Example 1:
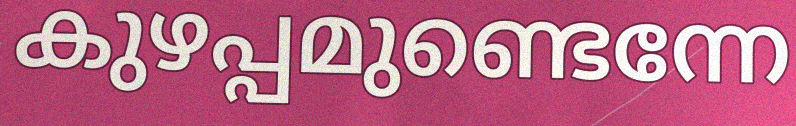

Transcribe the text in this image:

കുഴപ്പമുണ്ടെന്നേ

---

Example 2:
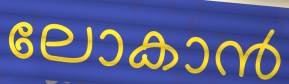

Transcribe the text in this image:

ലോകാൻ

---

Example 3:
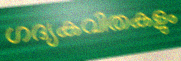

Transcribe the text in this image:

ഗദ്യകവിതകളും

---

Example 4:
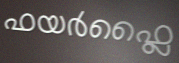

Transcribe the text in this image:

ഫയർഫ്ലൈ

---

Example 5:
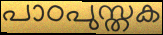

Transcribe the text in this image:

പാഠപുസ്തക